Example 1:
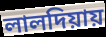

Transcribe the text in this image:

লালদিয়ায়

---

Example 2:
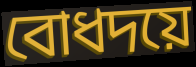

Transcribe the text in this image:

বোধদয়ে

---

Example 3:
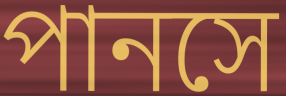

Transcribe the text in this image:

পানসে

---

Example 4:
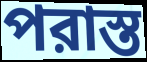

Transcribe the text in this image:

পরাস্ত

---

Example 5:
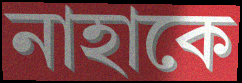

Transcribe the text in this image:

নাহাকে